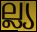
ല്ല്യ